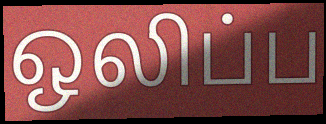
ஒலிப்ப